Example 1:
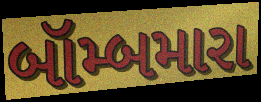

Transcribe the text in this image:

બૉમ્બમારા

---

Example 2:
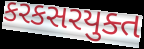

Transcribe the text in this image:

કરકસરયુક્ત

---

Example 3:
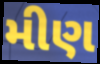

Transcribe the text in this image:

મીણ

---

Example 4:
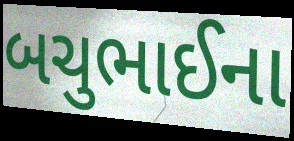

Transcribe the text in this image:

બચુભાઈના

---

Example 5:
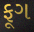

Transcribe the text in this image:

ફૂગ